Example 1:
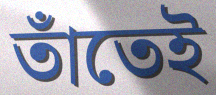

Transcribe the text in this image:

তাঁতেই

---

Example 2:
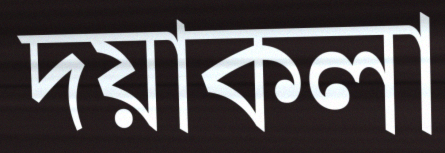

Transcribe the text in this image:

দয়াকলা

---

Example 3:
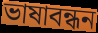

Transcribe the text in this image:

ভাষাবন্ধন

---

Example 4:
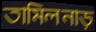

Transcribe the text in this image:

তামিলনাড়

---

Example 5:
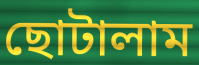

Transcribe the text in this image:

ছোটালাম